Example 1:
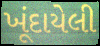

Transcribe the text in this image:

ખૂંદાયેલી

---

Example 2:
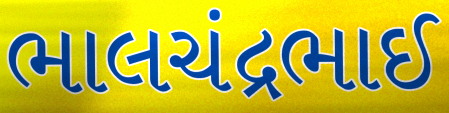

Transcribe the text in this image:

ભાલચંદ્રભાઈ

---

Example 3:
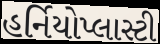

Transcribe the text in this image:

હર્નિયોપ્લાસ્ટી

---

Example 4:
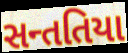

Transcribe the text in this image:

સન્તતિયા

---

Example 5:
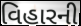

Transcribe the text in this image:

વિહારની